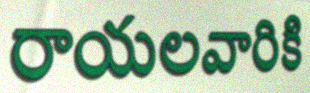
రాయలవారికి